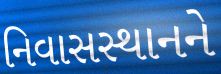
નિવાસસ્થાનને